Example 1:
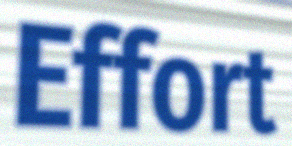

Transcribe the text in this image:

Effort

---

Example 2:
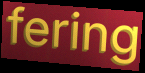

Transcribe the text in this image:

fering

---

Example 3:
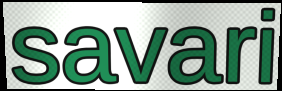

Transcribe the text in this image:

savari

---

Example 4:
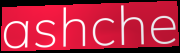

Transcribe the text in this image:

ashche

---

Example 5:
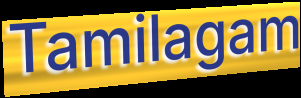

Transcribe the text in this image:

Tamilagam